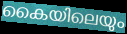
കൈയിലെയും